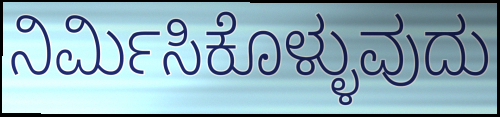
ನಿರ್ಮಿಸಿಕೊಳ್ಳುವುದು